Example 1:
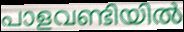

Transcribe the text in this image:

പാളവണ്ടിയിൽ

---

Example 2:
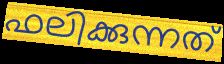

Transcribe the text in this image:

ഫലിക്കുന്നത്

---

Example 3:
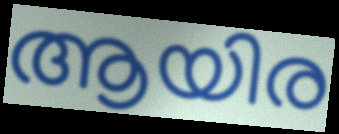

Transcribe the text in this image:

ആയിര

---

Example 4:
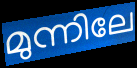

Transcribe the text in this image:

മുന്നിലേ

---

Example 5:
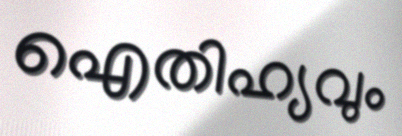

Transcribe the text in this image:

ഐതിഹ്യവും